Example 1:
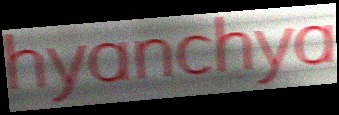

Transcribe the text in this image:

hyanchya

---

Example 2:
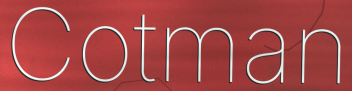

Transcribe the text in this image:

Cotman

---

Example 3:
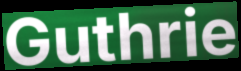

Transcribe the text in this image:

Guthrie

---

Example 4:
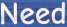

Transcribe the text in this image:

Need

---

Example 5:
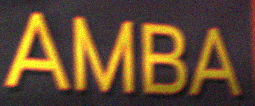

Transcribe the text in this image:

AMBA